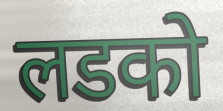
लडको